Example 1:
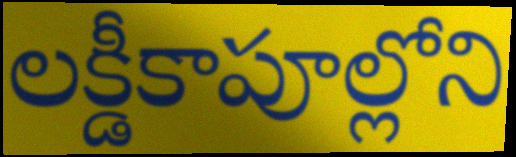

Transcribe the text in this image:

లక్డీకాపూల్లోని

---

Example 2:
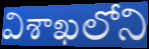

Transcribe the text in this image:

విశాఖలోని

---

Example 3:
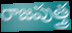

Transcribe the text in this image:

రాజపుత్త్ర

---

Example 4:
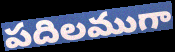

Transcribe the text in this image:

పదిలముగా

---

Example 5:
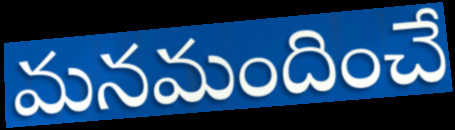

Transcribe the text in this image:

మనమందించే